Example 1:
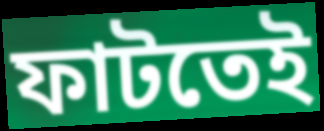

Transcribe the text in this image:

ফাটতেই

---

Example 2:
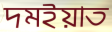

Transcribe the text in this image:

দমইয়াত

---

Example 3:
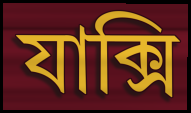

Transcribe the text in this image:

যাক্সি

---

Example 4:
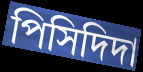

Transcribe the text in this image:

পিসিদিদা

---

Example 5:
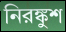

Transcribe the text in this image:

নিরঙ্কুশ